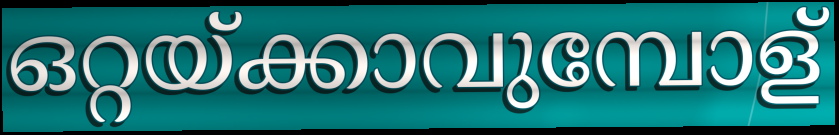
ഒറ്റയ്ക്കാവുമ്പോള്